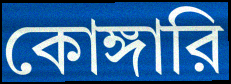
কোঙ্গারি